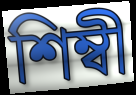
শিম্বী